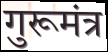
गुरूमंत्र